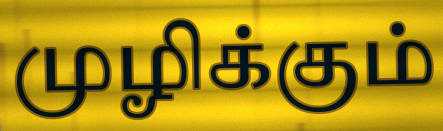
முழிக்கும்